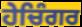
ਹੇਚਿੰਗਰ